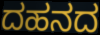
ದಹನದ